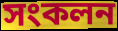
সংকলন